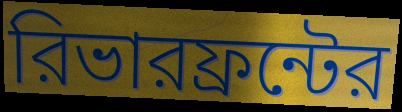
রিভারফ্রন্টের